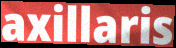
axillaris